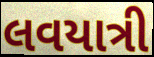
લવયાત્રી